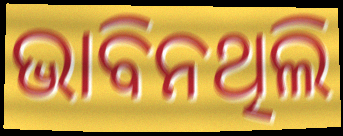
ଭାବିନଥିଲି